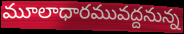
మూలాధారమువద్దనున్న